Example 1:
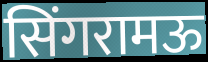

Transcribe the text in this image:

सिंगरामऊ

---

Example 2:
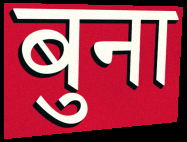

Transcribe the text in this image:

बुना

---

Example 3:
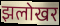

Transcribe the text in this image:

झलोखर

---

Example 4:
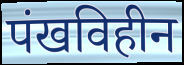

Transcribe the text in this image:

पंखविहीन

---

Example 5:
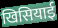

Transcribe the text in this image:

खिसियाई